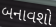
બનાવશો